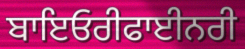
ਬਾਇਓਰੀਫਾਈਨਰੀ